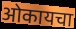
ओकायचा